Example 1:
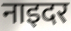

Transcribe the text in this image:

नाइदर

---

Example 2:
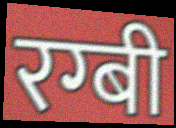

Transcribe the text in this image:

रग्‍बी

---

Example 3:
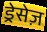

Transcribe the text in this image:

ड्रेसेज़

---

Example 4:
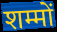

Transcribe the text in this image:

शम्मों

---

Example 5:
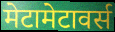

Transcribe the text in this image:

मेटामेटावर्स